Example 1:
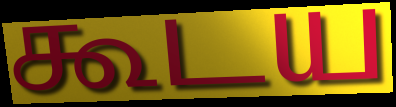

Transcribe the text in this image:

கூடய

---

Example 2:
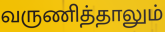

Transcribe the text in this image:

வருணித்தாலும்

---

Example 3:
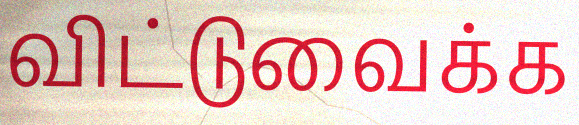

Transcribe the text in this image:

விட்டுவைக்க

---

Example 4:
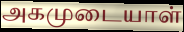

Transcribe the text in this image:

அகமுடையாள்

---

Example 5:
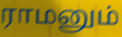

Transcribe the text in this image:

ராமனும்